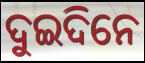
ଦୁଇଦିନେ